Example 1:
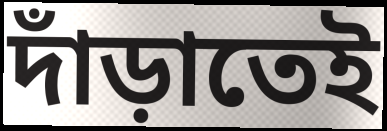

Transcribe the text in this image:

দাঁড়াতেই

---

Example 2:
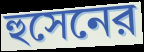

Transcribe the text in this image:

হুসেনের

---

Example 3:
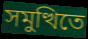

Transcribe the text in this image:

সমুত্থিতে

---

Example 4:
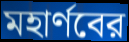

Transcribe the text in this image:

মহার্ণবের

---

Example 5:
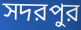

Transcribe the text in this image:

সদরপুর